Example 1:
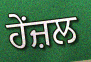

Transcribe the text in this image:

ਹੇਂਜ਼ਲ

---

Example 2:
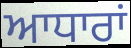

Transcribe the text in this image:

ਆਧਾਰਾਂ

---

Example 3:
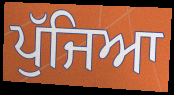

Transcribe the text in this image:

ਪੁੱਜਿਆ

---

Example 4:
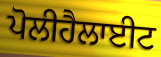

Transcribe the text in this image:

ਪੋਲੀਹੈਲਾਈਟ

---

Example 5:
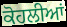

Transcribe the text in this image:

ਕੋਹਲੀਆਂ